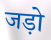
जड़ो